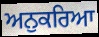
ਅਨੁਕਰਿਆ